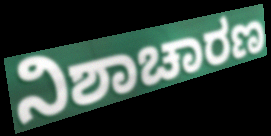
ನಿಶಾಚಾರಣ